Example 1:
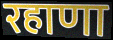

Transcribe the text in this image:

रहाणा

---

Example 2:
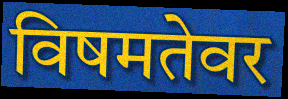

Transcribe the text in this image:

विषमतेवर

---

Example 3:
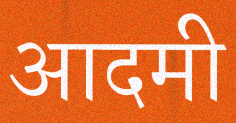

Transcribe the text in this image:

आदमी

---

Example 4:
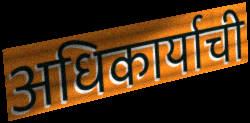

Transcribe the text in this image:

अधिकार्याची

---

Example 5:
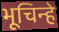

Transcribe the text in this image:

भूचिन्हे